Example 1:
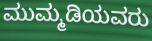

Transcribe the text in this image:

ಮುಮ್ಮಡಿಯವರು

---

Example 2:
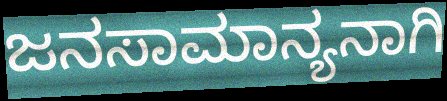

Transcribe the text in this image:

ಜನಸಾಮಾನ್ಯನಾಗಿ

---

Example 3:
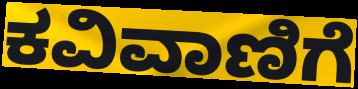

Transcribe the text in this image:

ಕವಿವಾಣಿಗೆ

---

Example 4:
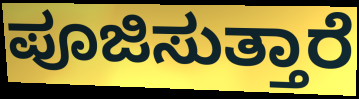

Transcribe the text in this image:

ಪೂಜಿಸುತ್ತಾರೆ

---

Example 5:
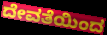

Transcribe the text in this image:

ದೇವತೆಯಿಂದ